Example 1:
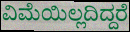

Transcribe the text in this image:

ವಿಮೆಯಿಲ್ಲದಿದ್ದರೆ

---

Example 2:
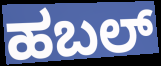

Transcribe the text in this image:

ಹಬಲ್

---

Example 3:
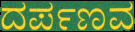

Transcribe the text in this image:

ದರ್ಪಣವ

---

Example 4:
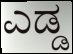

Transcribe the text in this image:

ಎಡ್ಡ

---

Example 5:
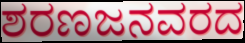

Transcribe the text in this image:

ಶರಣಜನವರದ